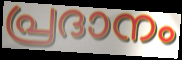
പ്രദാനം